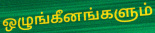
ஒழுங்கீனங்களும்